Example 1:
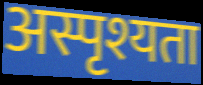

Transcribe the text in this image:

अस्पृश्यता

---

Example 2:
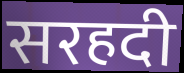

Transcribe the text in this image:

सरहदी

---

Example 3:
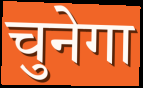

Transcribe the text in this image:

चुनेगा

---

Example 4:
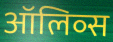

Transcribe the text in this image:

ऑलिव्स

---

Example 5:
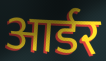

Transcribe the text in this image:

आर्डर